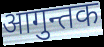
आगुन्तक